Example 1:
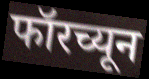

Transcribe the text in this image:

फॉरच्यून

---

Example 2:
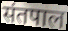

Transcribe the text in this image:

संतपाल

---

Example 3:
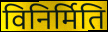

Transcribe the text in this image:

विनिर्मिति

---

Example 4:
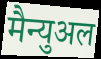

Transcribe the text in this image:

मैन्युअल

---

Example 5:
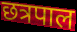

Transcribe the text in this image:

छत्रपाल